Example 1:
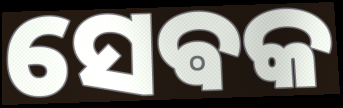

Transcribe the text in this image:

ସେଵକ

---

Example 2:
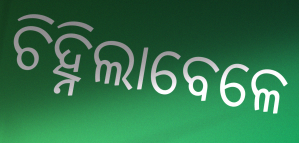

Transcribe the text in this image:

ଚିହ୍ନିଲାବେଳେ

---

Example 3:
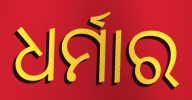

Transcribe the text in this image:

ଧର୍ମାର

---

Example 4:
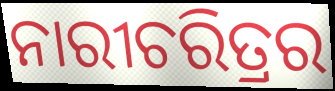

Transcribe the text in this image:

ନାରୀଚରିତ୍ରର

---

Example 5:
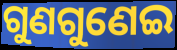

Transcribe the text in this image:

ଗୁଣଗୁଣେଇ